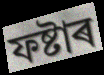
ফষ্টাৰ